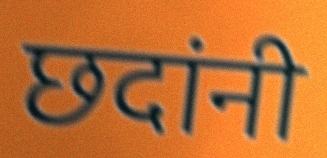
छदांनी